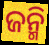
ଜନ୍ମି